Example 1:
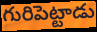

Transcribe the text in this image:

గురిపెట్టాడు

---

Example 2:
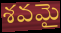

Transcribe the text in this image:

శవమై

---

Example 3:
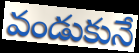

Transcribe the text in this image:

వండుకునే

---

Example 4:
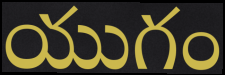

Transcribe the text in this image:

యుగం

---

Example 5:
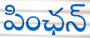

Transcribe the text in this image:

పింఛన్